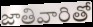
జాతివారితో